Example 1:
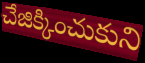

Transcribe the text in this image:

చేజిక్కించుకుని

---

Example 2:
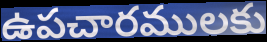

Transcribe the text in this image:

ఉపచారములకు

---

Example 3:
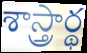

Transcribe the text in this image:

శాస్త్రార్థ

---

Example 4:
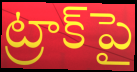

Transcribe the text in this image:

ట్రాక్‌పై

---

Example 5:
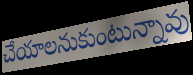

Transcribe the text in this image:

చేయాలనుకుంటున్నావు